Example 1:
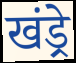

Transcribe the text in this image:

खंड्रे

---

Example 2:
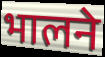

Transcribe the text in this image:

भालने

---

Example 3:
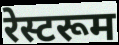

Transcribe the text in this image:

रेस्टरूम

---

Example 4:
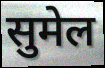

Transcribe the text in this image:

सुमेल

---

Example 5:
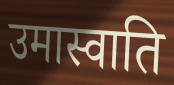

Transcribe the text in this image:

उमास्वाति